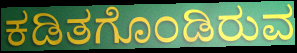
ಕಡಿತಗೊಂಡಿರುವ